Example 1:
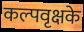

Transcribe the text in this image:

कल्पवृक्षके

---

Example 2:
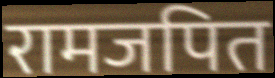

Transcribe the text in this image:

रामजपित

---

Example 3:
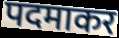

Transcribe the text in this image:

पदमाकर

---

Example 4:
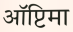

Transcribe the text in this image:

ऑप्टिमा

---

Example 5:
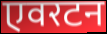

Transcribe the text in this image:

एवरटन